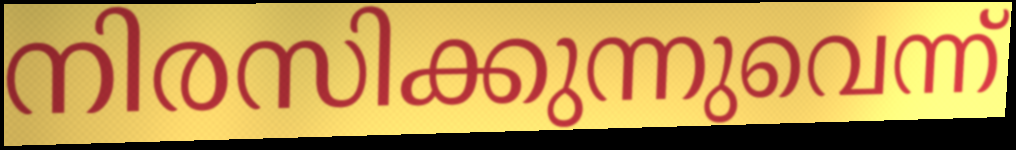
നിരസിക്കുന്നുവെന്ന്